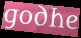
godhe